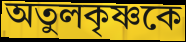
অতুলকৃষ্ণকে